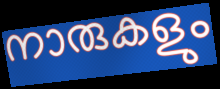
നാരുകളും